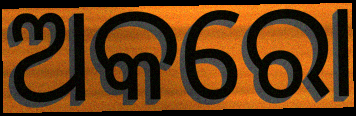
ଅକରୋ